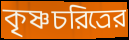
কৃষ্ণচরিত্রের